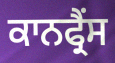
ਕਾਨਫ੍ਰੈਂਸ